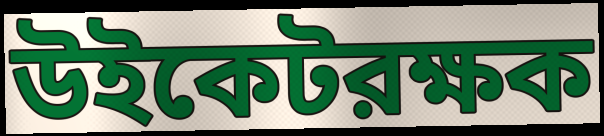
উইকেটরক্ষক